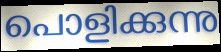
പൊളിക്കുന്നു